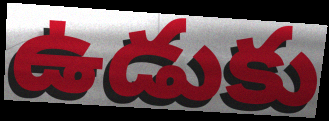
ఉడుకు